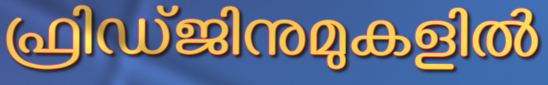
ഫ്രിഡ്ജിനുമുകളിൽ